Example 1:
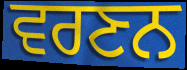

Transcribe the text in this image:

ਵਰਣਨ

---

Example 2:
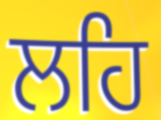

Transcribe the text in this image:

ਲਹਿ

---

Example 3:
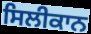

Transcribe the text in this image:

ਸਿਲੀਕਾਨ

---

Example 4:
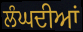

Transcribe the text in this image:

ਲੰਘਦੀਆਂ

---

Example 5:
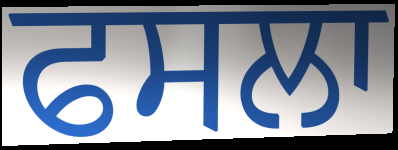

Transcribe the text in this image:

ਫਸਲਾ